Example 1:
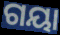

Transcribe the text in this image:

ଗୟା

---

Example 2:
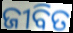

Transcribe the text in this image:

ଜୀବିତ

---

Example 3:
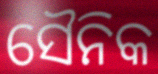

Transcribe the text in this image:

ସୈନିକ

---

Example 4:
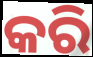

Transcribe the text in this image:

କରି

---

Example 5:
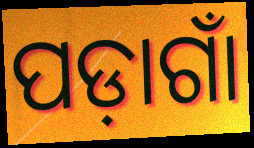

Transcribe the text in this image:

ପଡ଼ାଗାଁ